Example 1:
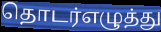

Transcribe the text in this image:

தொடர்எழுத்து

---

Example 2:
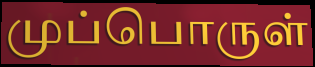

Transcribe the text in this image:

முப்பொருள்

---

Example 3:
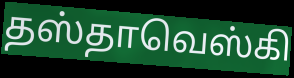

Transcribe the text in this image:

தஸ்தாவெஸ்கி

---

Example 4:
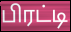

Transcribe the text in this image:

பிரட்டி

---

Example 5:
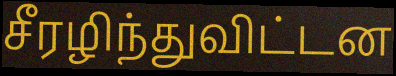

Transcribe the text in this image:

சீரழிந்துவிட்டன